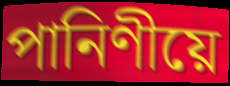
পানিণীয়ে